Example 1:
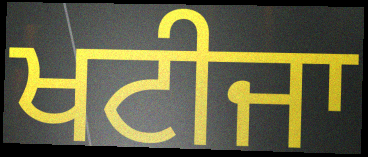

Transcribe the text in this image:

ਖਟੀਜਾ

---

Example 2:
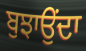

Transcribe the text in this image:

ਬੁਝਾਉਂਦਾ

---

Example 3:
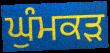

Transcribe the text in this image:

ਘੁੰਮਕੜ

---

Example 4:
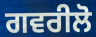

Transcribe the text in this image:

ਗਵਰੀਲੋ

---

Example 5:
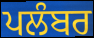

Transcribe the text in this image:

ਪਲੰਬਰ